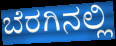
ಬೆರಗಿನಲ್ಲಿ